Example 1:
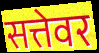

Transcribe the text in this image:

सत्तेवर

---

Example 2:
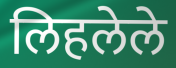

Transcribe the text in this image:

लिहलेले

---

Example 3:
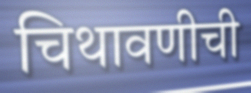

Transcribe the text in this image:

चिथावणीची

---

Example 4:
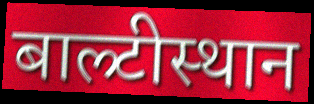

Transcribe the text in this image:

बाल्टीस्थान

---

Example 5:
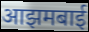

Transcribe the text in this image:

आझमबाई